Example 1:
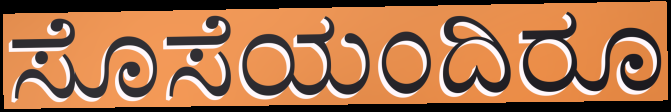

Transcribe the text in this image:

ಸೊಸೆಯಂದಿರೂ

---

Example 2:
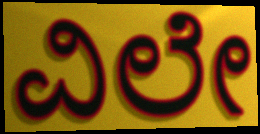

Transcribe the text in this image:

ವಿಲೇ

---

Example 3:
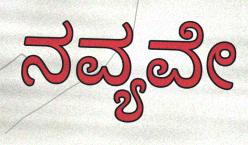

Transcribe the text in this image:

ನವ್ಯವೇ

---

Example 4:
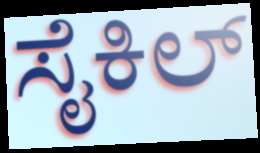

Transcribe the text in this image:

ಸೈಕಿಲ್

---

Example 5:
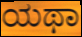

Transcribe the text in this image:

ಯಥಾ